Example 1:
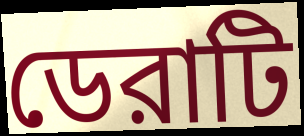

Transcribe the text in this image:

ডেরাটি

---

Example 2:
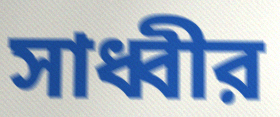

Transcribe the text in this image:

সাধ্বীর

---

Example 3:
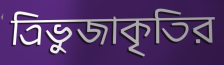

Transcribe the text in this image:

ত্রিভুজাকৃতির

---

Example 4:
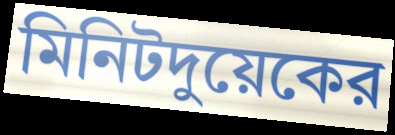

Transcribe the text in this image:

মিনিটদুয়েকের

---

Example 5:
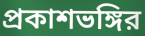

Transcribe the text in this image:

প্রকাশভঙ্গির